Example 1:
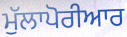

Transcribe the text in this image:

ਮੁੱਲਾਪੋਰੀਆਰ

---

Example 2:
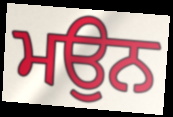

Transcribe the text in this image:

ਮਉਨ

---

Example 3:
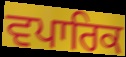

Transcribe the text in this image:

ਵਪਾਰਿਕ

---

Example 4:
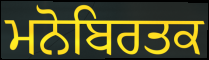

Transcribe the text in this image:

ਮਨੋਬਿਰਤਕ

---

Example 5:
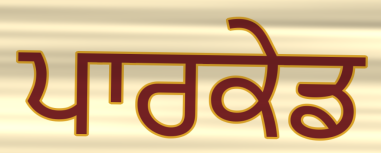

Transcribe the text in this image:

ਪਾਰਕੇਡ